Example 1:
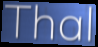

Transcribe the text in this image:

Thal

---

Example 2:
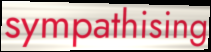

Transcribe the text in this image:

sympathising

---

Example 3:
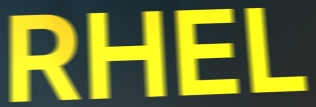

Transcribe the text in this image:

RHEL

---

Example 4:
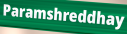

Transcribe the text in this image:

Paramshreddhay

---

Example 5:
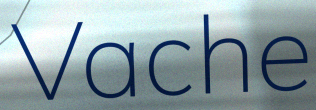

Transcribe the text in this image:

Vache